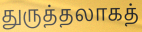
துருத்தலாகத்